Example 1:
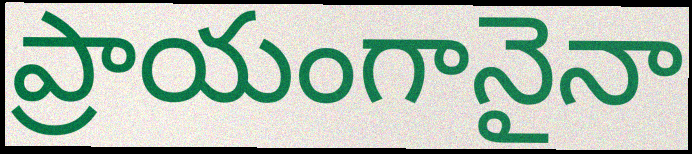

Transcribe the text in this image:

ప్రాయంగానైనా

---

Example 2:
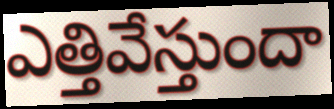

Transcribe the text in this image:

ఎత్తివేస్తుందా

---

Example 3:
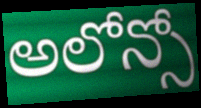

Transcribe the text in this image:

అలోన్సో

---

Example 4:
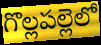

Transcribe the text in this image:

గొల్లపల్లెలో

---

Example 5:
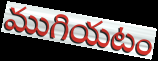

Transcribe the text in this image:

ముగియటం